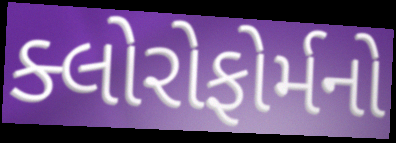
ક્લોરોફોર્મનો